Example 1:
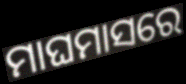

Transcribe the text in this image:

ମାଘମାସରେ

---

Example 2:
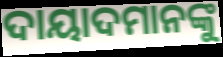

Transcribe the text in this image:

ଦାୟାଦମାନଙ୍କୁ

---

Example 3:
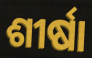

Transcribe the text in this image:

ଶୀର୍ଷା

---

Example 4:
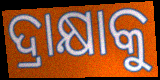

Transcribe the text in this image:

ଦ୍ରାକ୍ଷାକୁ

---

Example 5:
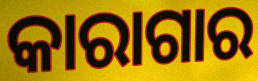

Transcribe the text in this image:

କାରାଗାର